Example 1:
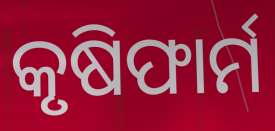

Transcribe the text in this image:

କୃଷିଫାର୍ମ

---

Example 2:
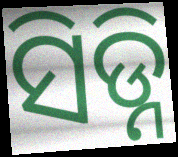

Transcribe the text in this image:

ସିଡ୍ନି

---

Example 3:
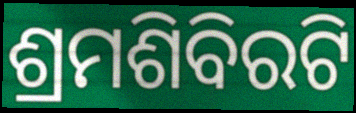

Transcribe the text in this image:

ଶ୍ରମଶିବିରଟି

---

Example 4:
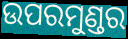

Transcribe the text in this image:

ଉପରମୁଣ୍ଡର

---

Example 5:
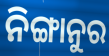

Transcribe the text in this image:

ନିଙ୍ଗାନୁର